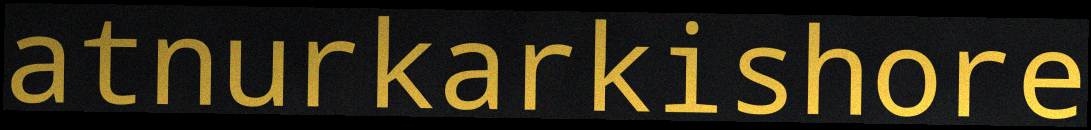
atnurkarkishore